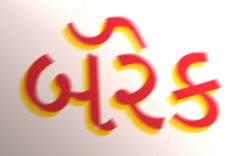
બૅરેક